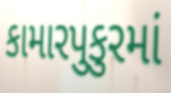
કામારપુકુરમાં